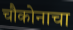
चौकोनाचा